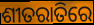
ଶୀତରାତିରେ